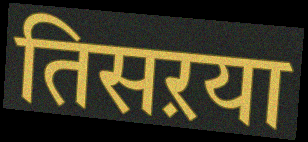
तिसऱया